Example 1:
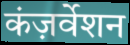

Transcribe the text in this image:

कंज़र्वेशन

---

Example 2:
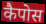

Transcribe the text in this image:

कैपोस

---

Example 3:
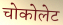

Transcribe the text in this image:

चोकोलेट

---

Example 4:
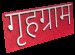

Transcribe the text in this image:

गृहग्राम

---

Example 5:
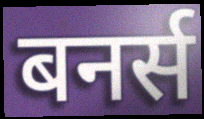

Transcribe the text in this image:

बनर्स